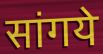
सांगये